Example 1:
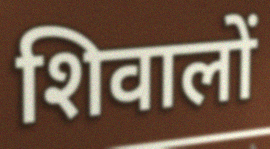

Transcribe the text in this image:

शिवालों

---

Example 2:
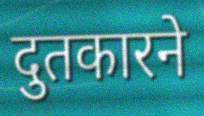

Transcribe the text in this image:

दुतकारने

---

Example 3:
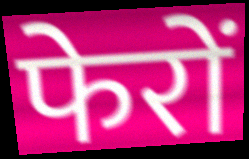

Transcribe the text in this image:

फेरों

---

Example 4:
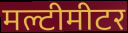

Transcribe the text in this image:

मल्टीमीटर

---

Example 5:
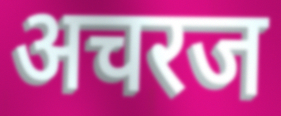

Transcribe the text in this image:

अचरज